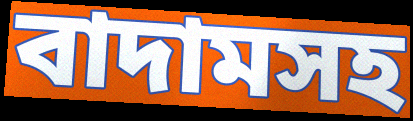
বাদামসহ